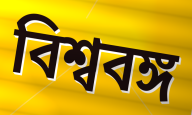
বিশ্ববঙ্গ